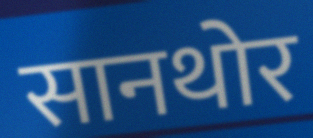
सानथोर